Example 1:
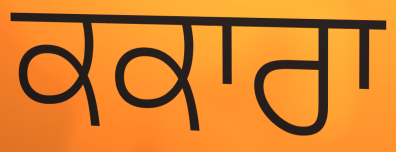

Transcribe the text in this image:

ਕਕਾਰਾ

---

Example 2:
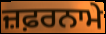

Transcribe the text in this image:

ਜ਼ਫ਼ਰਨਾਮੇ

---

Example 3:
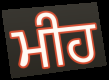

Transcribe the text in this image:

ਮੀਹ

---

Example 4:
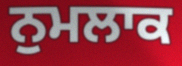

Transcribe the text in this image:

ਨੁਮਲਾਕ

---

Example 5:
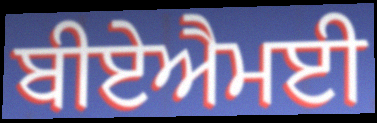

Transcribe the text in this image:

ਬੀਏਐਮਈ